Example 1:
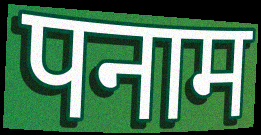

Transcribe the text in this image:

पनाम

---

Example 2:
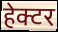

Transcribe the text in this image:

हेक्टर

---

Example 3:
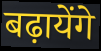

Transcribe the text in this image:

बढ़ायेंगे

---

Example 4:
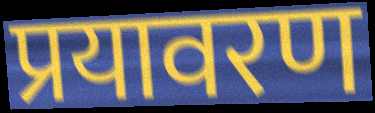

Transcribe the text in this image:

प्रयावरण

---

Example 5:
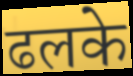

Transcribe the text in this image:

ढलके